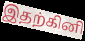
இதற்கினி